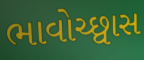
ભાવોચ્છ્વાસ